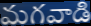
మగవాడి